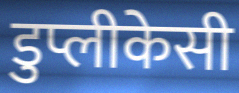
डुप्लीकेसी